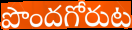
పొందగోరుట